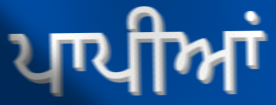
ਪਾਪੀਆਂ